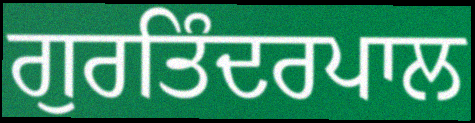
ਗੁਰਤਿੰਦਰਪਾਲ